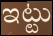
ఇట్టు